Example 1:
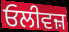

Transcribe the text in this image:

ਓਲੀਵਜ਼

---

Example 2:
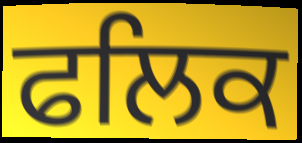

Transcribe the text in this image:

ਫਲਿਕ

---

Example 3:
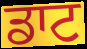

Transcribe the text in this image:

ਡਾਟ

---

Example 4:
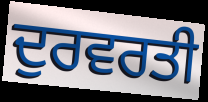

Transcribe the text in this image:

ਦੁਰਵਰਤੀ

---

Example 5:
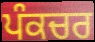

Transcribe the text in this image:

ਪੰਕਚਰ